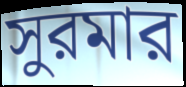
সুরমার